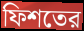
ফিশতের